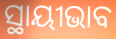
ସ୍ଥାୟୀଭାବ